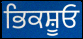
ਭਿਕਸ਼ੂਓ